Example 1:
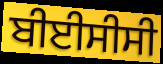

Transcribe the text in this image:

ਬੀਈਸੀਸੀ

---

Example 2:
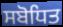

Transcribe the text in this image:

ਸਬੋਧਿਤ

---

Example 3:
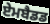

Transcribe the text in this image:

ਏਮਬੈਡਡ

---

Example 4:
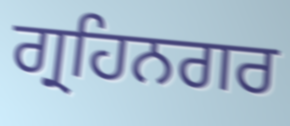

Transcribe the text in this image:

ਗ੍ਰਹਿਨਗਰ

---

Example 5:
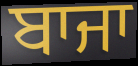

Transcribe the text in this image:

ਬਾਜਾ